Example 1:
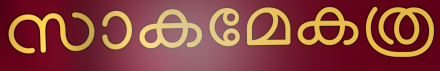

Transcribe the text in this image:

സാകമേകത്ര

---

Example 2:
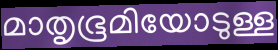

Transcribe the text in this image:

മാതൃഭൂമിയോടുള്ള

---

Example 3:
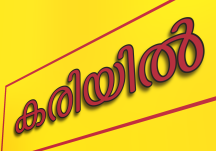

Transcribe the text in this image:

കരിയിൽ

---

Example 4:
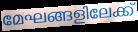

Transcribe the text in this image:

മേഘങ്ങളിലേക്ക്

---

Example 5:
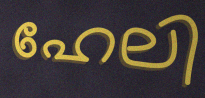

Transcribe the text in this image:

ഹേലി